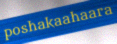
poshakaahaara